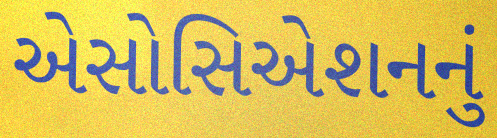
એસોસિએશનનું